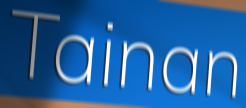
Tainan